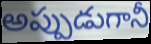
అప్పుడుగానీ